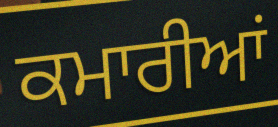
ਕਮਾਰੀਆਂ